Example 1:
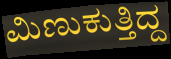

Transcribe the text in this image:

ಮಿಣುಕುತ್ತಿದ್ದ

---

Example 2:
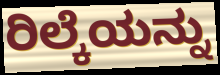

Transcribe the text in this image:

ರಿಲ್ಕೆಯನ್ನು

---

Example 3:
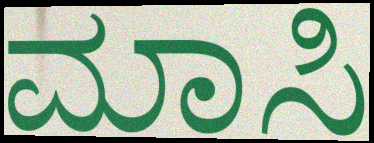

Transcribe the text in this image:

ಮಾಸಿ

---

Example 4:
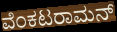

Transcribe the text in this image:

ವೆಂಕಟರಾಮನ್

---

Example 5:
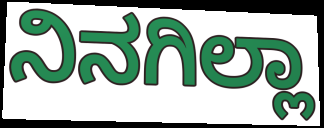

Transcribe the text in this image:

ನಿನಗಿಲ್ಲಾ